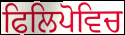
ਫਿਲਿਪੋਵਿਚ